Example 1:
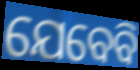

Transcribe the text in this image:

ଯେବେବି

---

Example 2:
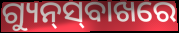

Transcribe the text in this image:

ଗ୍ୟୁନ୍‍ସ୍‍ବାଖରେ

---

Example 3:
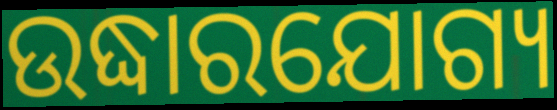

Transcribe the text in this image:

ଉଦ୍ଧାରଯୋଗ୍ୟ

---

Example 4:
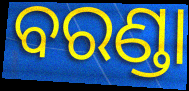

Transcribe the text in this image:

ବରଣ୍ଡା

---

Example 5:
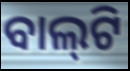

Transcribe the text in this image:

ବାଲ୍‍ଟି